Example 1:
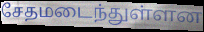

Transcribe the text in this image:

சேதமடைந்துள்ளன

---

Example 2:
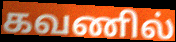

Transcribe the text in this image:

கவணில்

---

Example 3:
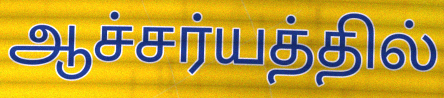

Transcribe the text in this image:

ஆச்சர்யத்தில்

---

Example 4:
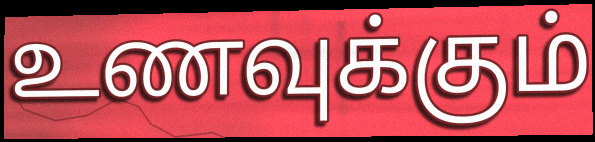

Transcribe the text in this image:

உணவுக்கும்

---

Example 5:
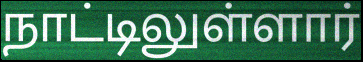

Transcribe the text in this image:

நாட்டிலுள்ளார்